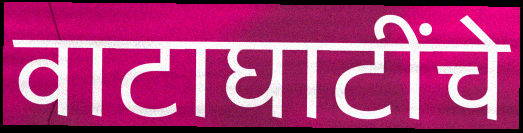
वाटाघाटींचे